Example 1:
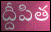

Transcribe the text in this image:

ద్దీపిత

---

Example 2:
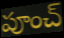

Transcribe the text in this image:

పూంచ్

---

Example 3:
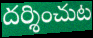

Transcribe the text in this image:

దర్శించుట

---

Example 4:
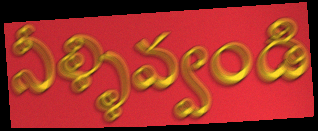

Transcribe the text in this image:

నీళ్ళివ్వండి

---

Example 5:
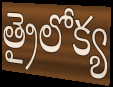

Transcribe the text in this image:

త్రైలోక్య